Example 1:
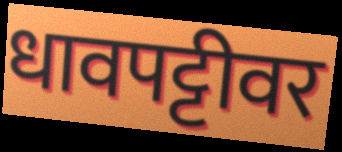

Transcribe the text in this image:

धावपट्टीवर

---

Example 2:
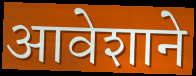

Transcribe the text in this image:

आवेशाने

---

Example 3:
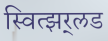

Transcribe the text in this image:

स्वित्झर्लड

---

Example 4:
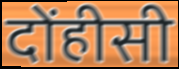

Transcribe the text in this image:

दोंहीसी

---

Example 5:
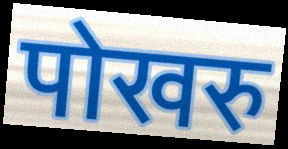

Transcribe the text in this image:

पोखरु